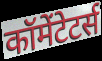
कॉमेंटेटर्स